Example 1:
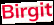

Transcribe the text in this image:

Birgit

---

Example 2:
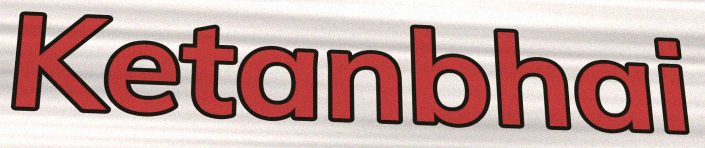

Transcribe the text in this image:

Ketanbhai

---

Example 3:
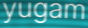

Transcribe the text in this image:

yugam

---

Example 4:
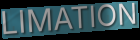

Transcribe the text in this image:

LIMATION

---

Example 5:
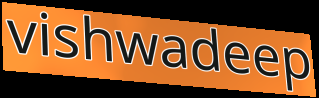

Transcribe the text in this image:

vishwadeep